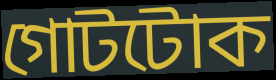
গোটটোক